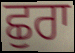
ਛੁਰਾ